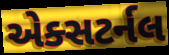
એક્સટર્નલ